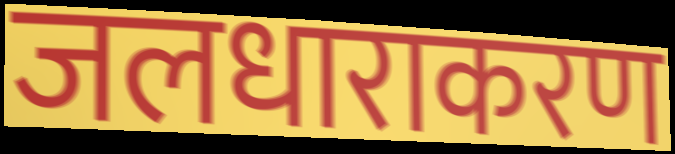
जलधाराकरण